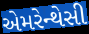
એમરેન્થેસી